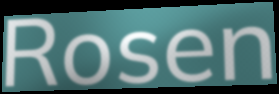
Rosen